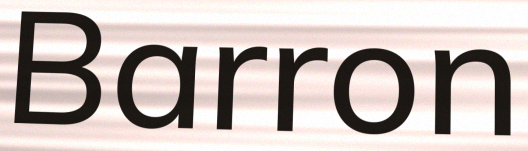
Barron